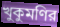
খুকুমণির